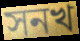
সনখ